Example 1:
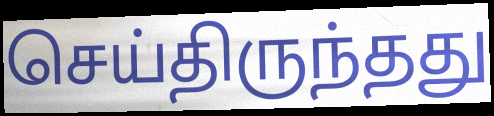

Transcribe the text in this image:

செய்திருந்தது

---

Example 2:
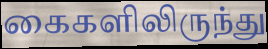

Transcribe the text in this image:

கைகளிலிருந்து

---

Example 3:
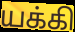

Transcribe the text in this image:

யக்கி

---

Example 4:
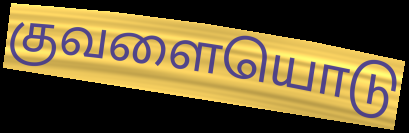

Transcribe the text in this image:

குவளையொடு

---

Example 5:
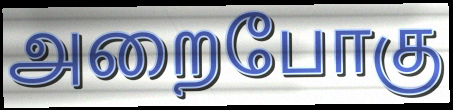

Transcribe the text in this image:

அறைபோகு